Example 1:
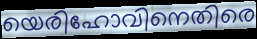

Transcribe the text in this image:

യെരിഹോവിനെതിരെ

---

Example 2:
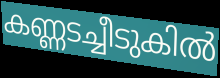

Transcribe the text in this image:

കണ്ണടച്ചീടുകിൽ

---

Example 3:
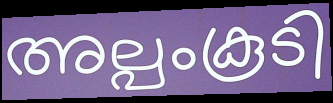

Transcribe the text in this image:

അല്പംകൂടി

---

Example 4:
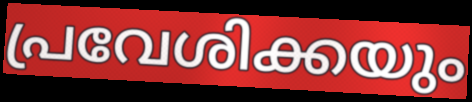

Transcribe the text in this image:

പ്രവേശിക്കയും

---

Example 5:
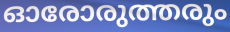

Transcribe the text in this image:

ഓരോരുത്തരും